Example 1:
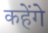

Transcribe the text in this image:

कहेंगे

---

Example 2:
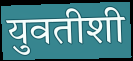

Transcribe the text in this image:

युवतीशी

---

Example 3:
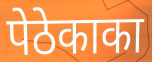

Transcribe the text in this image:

पेठेकाका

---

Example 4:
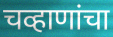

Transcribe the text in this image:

चव्हाणांचा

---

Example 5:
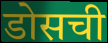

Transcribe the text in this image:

डोसची